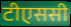
टीएससी